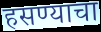
हसण्याचा